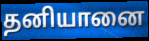
தனியானை